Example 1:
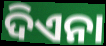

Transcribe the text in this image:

ଦିଏନା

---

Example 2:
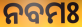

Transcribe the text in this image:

ନବମଃ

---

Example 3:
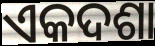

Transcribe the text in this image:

ଏକଦଶା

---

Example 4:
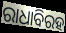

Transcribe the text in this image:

ରାଧାବିରହ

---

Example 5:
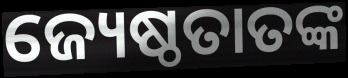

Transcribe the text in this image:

ଜ୍ୟେଷ୍ଠତାତଙ୍କ